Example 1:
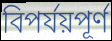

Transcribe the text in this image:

বিপর্যয়পূর্ণ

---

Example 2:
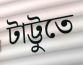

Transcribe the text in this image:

টাট্টুতে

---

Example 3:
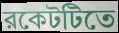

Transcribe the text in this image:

রকেটটিতে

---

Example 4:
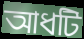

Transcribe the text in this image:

আধটি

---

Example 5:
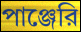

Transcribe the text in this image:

পাঞ্জেরি